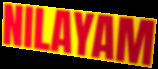
NILAYAM